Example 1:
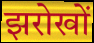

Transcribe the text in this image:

झरोखों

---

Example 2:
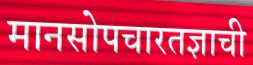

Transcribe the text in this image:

मानसोपचारतज्ञाची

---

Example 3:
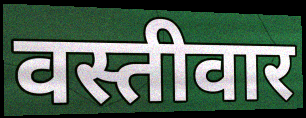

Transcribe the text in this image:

वस्तीवार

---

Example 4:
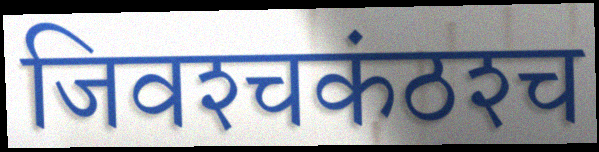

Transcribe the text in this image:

जिवश्चकंठश्च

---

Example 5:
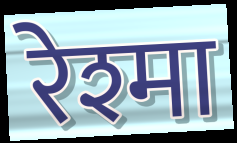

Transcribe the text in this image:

रेश्मा